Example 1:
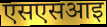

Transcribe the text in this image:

एसएसआइ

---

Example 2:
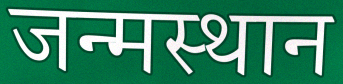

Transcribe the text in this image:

जन्मस्थान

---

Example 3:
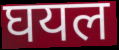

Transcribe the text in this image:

घयल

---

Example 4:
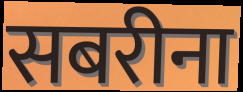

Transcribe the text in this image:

सबरीना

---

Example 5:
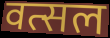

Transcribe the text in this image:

वत्सल